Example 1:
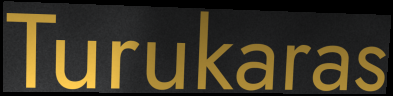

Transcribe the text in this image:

Turukaras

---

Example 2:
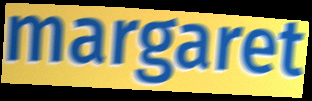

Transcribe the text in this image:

margaret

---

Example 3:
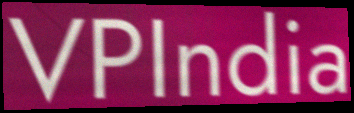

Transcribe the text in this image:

VPIndia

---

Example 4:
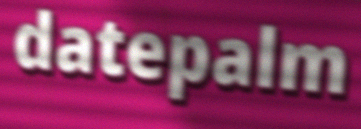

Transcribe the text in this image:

datepalm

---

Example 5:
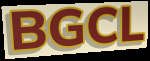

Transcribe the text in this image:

BGCL